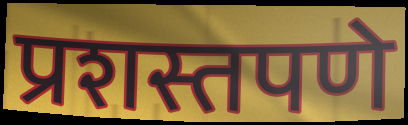
प्रशस्तपणे